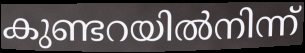
കുണ്ടറയിൽനിന്ന്